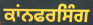
ਕਾਂਨਫਰਸਿੰਗ